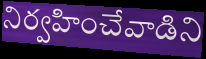
నిర్వహించేవాడిని